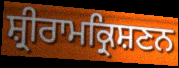
ਸ਼੍ਰੀਰਾਮਕ੍ਰਿਸ਼ਣਨ